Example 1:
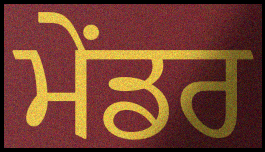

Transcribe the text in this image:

ਮੇਂਡਰ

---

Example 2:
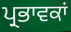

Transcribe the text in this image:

ਪ੍ਰਭਾਵਕਾਂ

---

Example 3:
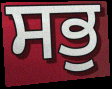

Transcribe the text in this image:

ਸਭੁ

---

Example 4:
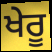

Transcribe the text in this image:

ਖੇਰੂ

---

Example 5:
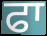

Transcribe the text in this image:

ਫਾ